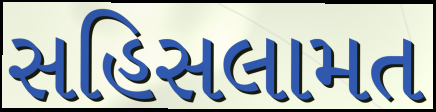
સહિસલામત